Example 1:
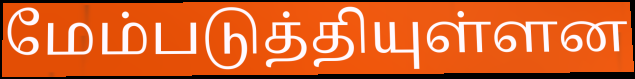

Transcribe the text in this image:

மேம்படுத்தியுள்ளன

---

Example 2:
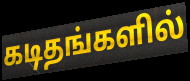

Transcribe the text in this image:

கடிதங்களில்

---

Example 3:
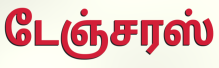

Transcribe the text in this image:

டேஞ்சரஸ்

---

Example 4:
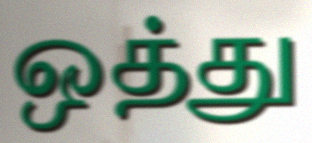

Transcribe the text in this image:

ஒத்து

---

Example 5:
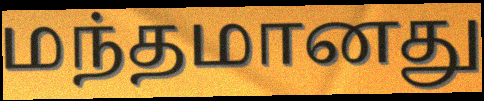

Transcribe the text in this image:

மந்தமானது